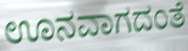
ಊನವಾಗದಂತೆ